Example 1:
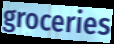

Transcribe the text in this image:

groceries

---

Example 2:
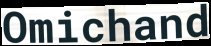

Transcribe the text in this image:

Omichand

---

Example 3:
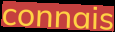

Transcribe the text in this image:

connais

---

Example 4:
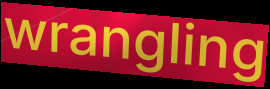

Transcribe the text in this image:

wrangling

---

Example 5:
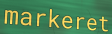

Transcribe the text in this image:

markeret